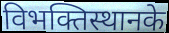
विभक्तिस्थानके